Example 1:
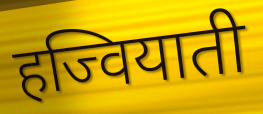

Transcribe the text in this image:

हज्वियाती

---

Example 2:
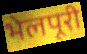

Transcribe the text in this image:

भेलपूरी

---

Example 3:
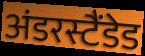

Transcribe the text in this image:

अंडरस्टैंडेड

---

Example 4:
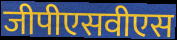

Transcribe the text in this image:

जीपीएसवीएस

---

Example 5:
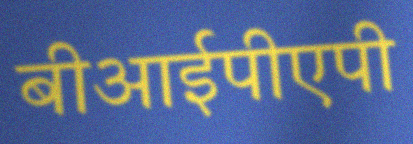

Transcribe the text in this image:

बीआईपीएपी